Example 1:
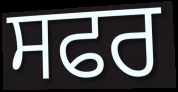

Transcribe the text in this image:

ਸਫਰ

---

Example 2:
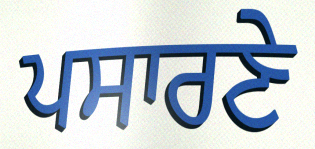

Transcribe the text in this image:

ਪਸਾਰਣੇ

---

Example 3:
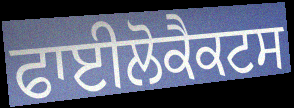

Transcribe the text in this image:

ਫਾਈਲੋਕੈਕਟਸ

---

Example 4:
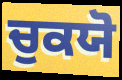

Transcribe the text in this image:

ਚੁਕਯੋ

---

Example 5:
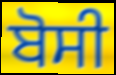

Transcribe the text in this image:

ਬੋਸੀ